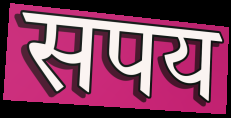
सपय